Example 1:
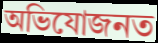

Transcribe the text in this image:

অভিযোজনত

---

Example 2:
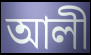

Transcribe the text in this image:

আলী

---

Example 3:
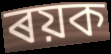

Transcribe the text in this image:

ৰয়ক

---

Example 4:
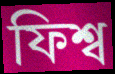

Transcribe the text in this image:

ফিশ্ব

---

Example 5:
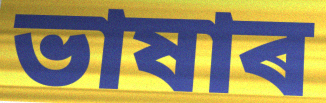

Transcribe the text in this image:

ভাষাৰ